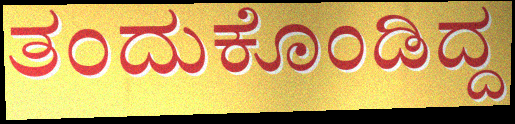
ತಂದುಕೊಂಡಿದ್ದ